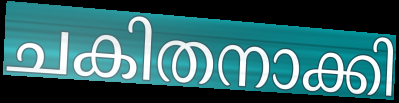
ചകിതനാക്കി